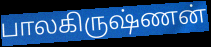
பாலகிருஷ்ணன்